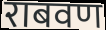
राबवण